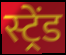
स्ट्रेंड